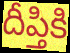
దీప్తికి